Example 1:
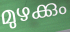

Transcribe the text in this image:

മുഴക്കും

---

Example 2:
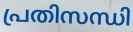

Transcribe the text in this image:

പ്രതിസന്ധി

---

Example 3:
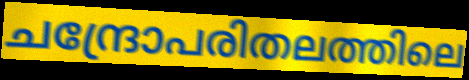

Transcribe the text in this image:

ചന്ദ്രോപരിതലത്തിലെ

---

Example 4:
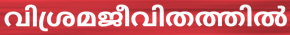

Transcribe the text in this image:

വിശ്രമജീവിതത്തിൽ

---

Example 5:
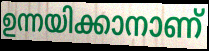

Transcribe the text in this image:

ഉന്നയിക്കാനാണ്